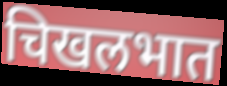
चिखलभात